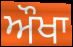
ਔਖਾ